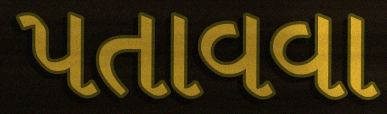
પતાવવા